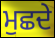
ਮੁਛਦੇ